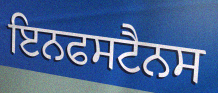
ਇਨਫਸਟੈਨਸ